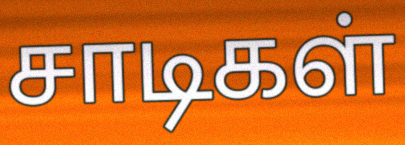
சாடிகள்